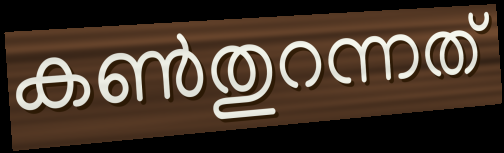
കൺതുറന്നത്